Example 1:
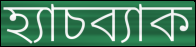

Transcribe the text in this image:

হ্যাচব্যাক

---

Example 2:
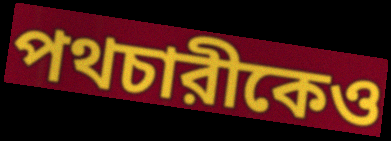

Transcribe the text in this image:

পথচারীকেও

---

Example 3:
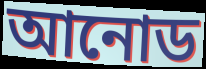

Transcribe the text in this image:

আনোড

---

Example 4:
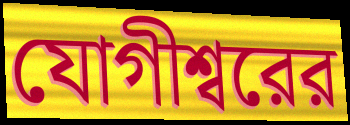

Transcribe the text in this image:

যোগীশ্বরের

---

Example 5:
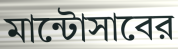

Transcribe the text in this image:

মান্টোসাবের